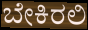
ಬೇಕಿರಲಿ